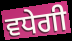
ਵਧੇਗੀ